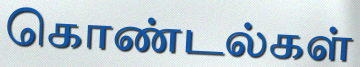
கொண்டல்கள்